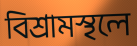
বিশ্রামস্থলে